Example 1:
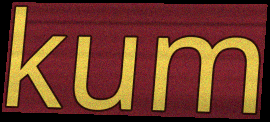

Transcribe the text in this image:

kum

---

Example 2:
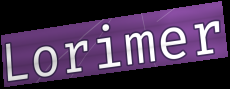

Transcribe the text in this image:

Lorimer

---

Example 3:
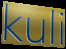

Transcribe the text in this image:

kuli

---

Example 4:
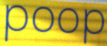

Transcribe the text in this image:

poop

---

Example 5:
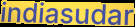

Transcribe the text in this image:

indiasudar